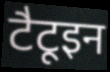
टैटूइन